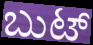
ಬುಟ್